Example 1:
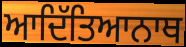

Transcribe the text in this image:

ਆਦਿੱਤਿਆਨਾਥ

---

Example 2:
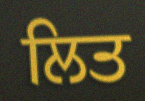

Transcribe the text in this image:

ਲਿਤ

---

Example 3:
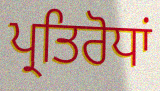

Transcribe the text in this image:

ਪ੍ਰਤਿਰੋਧਾਂ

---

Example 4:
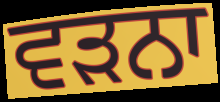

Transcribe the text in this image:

ਵੜਨਾ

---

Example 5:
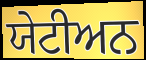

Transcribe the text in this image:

ਯੇਟੀਅਨ